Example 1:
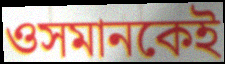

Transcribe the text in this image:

ওসমানকেই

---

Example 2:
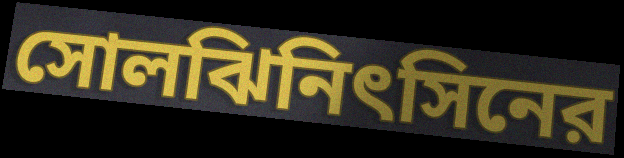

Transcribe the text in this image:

সোলঝিনিৎসিনের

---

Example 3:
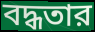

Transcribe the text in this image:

বদ্ধতার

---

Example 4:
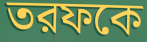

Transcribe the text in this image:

তরফকে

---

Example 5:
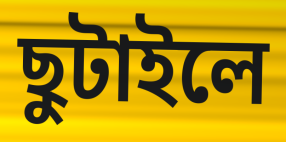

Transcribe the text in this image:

ছুটাইলে